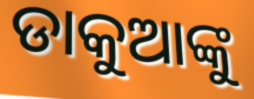
ଡାକୁଆଙ୍କୁ